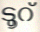
ടൂറ്